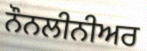
ਨੌਨਲੀਨੀਅਰ